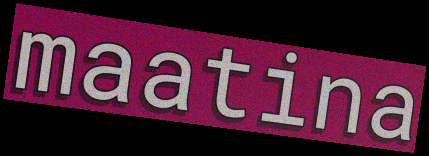
maatina